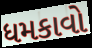
ધમકાવો